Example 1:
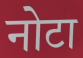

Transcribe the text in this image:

नोटा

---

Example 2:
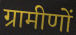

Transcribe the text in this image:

ग्रामीणों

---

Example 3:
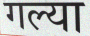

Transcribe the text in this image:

गल्या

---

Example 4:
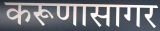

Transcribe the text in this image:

करूणासागर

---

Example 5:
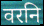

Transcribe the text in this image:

वरनि